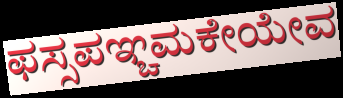
ಫಸ್ಸಪಞ್ಚಮಕೇಯೇವ